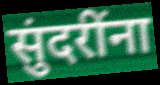
सुंदरींना